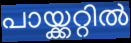
പായ്ക്കറ്റിൽ